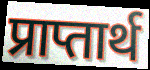
प्राप्तार्थ